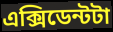
এক্সিডেন্টটা